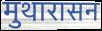
मुथारासन